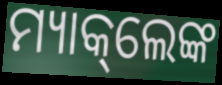
ମ୍ୟାକ୍‌ଲେଙ୍କ